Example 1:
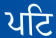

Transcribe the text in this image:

ਪਟਿ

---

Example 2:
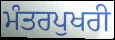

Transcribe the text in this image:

ਮੰਤਰਪੁਖਰੀ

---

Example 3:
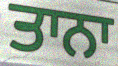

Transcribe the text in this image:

ਤਾਨਾ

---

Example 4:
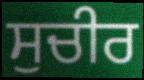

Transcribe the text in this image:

ਸੁਚੀਰ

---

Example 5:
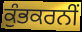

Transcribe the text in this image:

ਕੁੰਭਕਰਨੀਂ